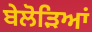
ਬੇਲੋੜਿਆਂ